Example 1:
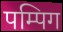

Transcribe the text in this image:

पम्पिग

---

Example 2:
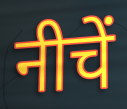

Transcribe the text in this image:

नीचें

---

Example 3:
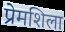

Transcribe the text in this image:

प्रेमशिला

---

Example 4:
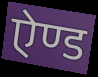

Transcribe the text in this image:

ऐण्ड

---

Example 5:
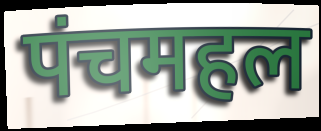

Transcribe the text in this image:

पंचमहल